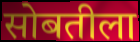
सोबतीला